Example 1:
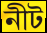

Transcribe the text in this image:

নীট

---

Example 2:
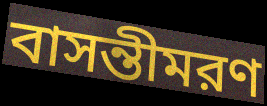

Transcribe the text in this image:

বাসন্তীমরণ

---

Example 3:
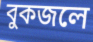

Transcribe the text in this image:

বুকজলে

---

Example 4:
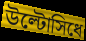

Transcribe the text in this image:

উল্টোসিধে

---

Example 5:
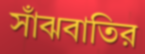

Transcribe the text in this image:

সাঁঝবাতির